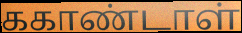
ககாண்டாள்